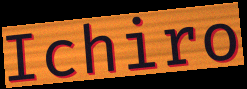
Ichiro